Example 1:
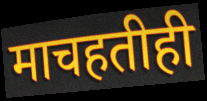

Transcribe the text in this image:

माचहतीही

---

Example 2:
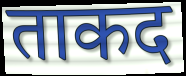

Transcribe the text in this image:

ताकद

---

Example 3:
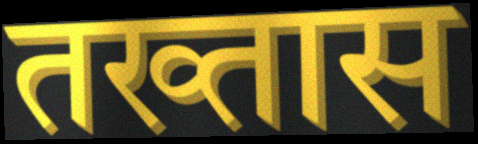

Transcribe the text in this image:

तख्तास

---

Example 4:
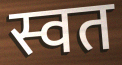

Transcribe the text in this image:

स्वत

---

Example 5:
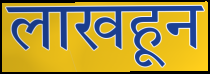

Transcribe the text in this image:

लाखहून